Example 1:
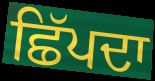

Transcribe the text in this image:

ਛਿੱਪਦਾ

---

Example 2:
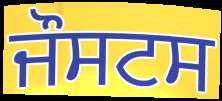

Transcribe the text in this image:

ਜੌਸਟਸ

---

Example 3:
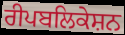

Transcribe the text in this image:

ਰੀਪਬਲਿਕੇਸ਼ਨ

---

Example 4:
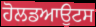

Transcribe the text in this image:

ਹੋਲਡਆਉਟਸ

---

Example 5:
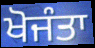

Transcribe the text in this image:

ਖੋਜੰਤਾ